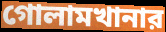
গোলামখানার